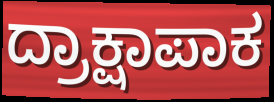
ದ್ರಾಕ್ಷಾಪಾಕ